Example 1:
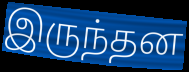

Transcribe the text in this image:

இருந்தன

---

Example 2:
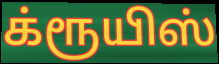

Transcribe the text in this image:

க்ரூயிஸ்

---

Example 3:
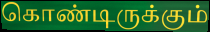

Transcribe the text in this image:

கொண்டிருக்கும்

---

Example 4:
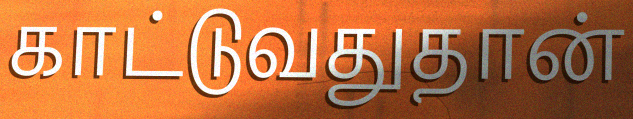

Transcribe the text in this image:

காட்டுவதுதான்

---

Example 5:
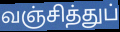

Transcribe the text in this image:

வஞ்சித்துப்